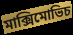
মাক্সিমোভিচ